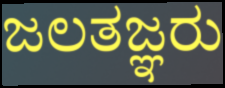
ಜಲತಜ್ಞರು